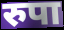
रुपा